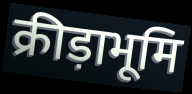
क्रीड़ाभूमि